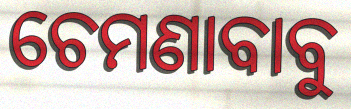
ଚେମଣାବାବୁ